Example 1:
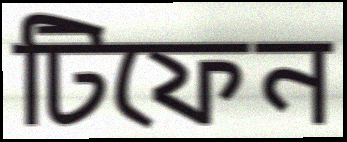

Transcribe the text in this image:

টিফেন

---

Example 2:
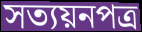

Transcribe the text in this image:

সত্যয়নপত্র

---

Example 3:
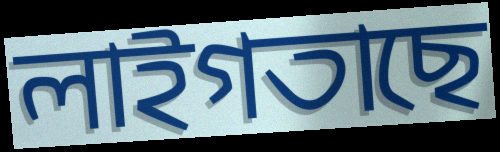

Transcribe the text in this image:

লাইগতাছে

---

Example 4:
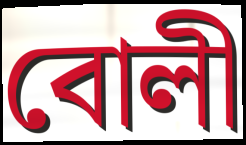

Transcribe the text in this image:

বোলী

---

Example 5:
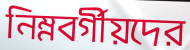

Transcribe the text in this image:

নিম্নবর্গীয়দের